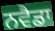
ਨਵੈਡਾ